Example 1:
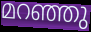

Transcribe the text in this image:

മറഞ്ഞു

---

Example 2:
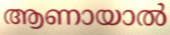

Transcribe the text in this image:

ആണായാൽ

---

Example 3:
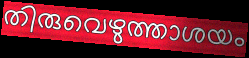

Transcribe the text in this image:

തിരുവെഴുത്താശയം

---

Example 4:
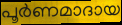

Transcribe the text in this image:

പൂർണമാദായ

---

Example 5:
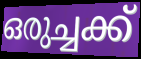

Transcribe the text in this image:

ഒരുച്ചക്ക്